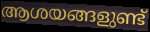
ആശയങ്ങളുണ്ട്